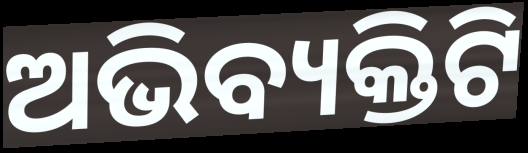
ଅଭିବ୍ୟକ୍ତିଟି